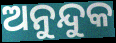
ଅନୁନ୍ଦୁକ